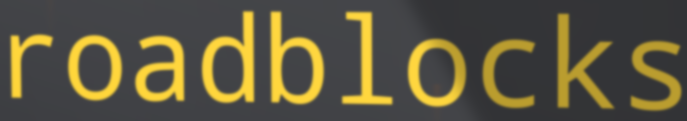
roadblocks